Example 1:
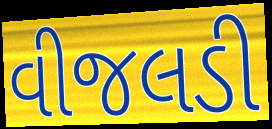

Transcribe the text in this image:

વીજલડી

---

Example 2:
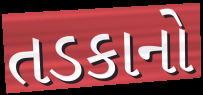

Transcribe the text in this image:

તડકાનો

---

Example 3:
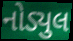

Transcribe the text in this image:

નોડ્યુલ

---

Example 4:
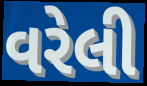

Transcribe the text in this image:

વરેલી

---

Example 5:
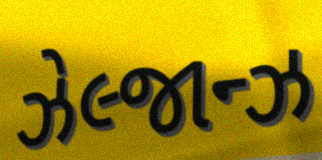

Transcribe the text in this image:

ઝેલ્જાન્ઝ